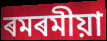
ৰমৰমীয়া